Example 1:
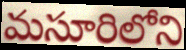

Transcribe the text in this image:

మసూరిలోని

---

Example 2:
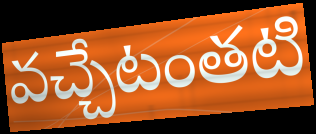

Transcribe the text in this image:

వచ్చేటంతటి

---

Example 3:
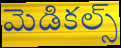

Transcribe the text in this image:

మెడికల్స్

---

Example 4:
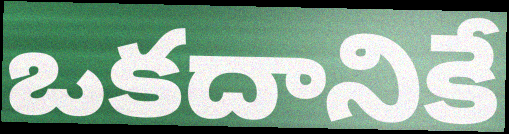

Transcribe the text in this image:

ఒకదానికే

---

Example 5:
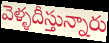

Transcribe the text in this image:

వెళ్ళదీస్తున్నారు